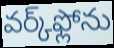
వర్క్‌ఫ్లోను